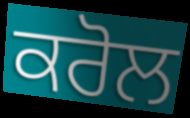
ਕਰੋਲ